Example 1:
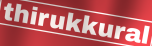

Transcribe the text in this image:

thirukkural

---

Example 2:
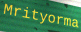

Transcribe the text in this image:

Mrityorma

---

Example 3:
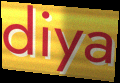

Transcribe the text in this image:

diya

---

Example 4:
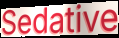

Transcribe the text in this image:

Sedative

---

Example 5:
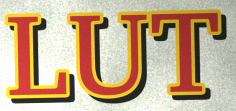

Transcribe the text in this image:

LUT